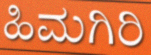
ಹಿಮಗಿರಿ